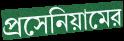
প্রসেনিয়ামের